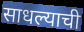
साधल्याची